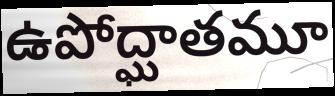
ఉపోద్ఘాతమూ